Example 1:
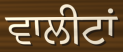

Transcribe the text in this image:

ਵਾਲੀਟਾਂ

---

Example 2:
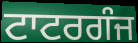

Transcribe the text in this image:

ਟਾਟਰਗੰਜ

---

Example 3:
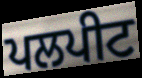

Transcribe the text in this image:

ਪਲਪੀਟ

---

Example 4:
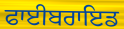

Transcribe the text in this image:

ਫਾਈਬਰਾਇਡ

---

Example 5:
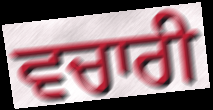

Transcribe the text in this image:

ਵਚਾਰੀ